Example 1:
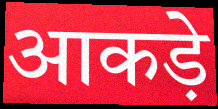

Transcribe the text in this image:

आकड़े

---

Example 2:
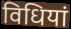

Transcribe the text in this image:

विधियां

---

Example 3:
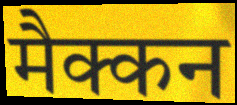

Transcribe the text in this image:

मैक्कन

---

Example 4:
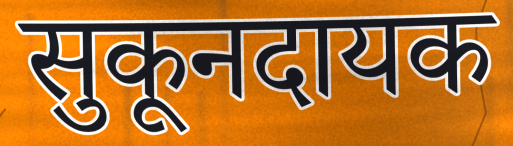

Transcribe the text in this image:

सुकूनदायक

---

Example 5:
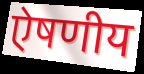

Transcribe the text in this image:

ऐषणीय